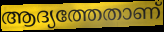
ആദ്യത്തേതാണ്